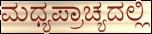
ಮಧ್ಯಪ್ರಾಚ್ಯದಲ್ಲಿ